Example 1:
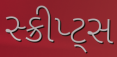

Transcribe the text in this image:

સ્ક્રીપ્ટ્સ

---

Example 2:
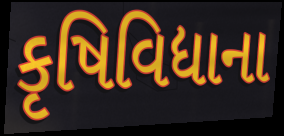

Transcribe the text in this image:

કૃષિવિદ્યાના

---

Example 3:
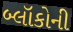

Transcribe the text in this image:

બ્લૉકોની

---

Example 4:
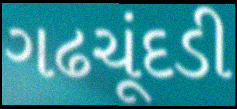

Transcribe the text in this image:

ગઢચૂંદડી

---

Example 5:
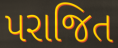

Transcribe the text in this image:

પરાજિત